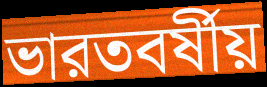
ভারতবর্ষীয়